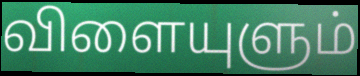
விளையுளும்